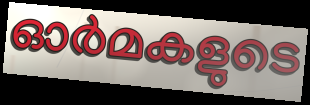
ഓർമകളുടെ